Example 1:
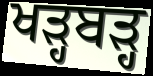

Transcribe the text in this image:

ਖੜ੍ਹਬੜ੍ਹ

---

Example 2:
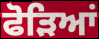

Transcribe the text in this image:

ਫੋੜਿਆਂ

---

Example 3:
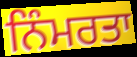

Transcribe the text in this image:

ਨਿੰਮਰਤਾ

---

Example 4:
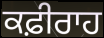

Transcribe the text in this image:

ਕਫ਼ੀਰਾਹ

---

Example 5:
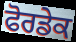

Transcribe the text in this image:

ਫੋਰਡੇਕ